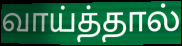
வாய்த்தால்